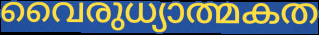
വൈരുധ്യാത്മകത